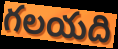
గలయది